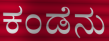
ಕಂಡೆನು